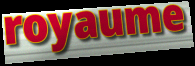
royaume